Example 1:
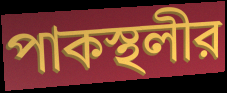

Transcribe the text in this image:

পাকস্থলীর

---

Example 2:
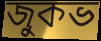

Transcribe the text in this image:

জুকভ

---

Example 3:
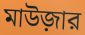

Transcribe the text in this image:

মাউজ়ার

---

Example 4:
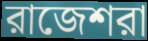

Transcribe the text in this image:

রাজেশরা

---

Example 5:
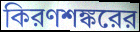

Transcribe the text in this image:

কিরণশঙ্করের